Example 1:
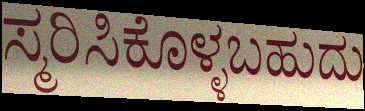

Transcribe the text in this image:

ಸ್ಮರಿಸಿಕೊಳ್ಳಬಹುದು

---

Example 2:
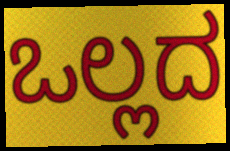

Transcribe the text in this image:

ಒಲ್ಲದ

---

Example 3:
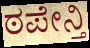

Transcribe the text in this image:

ಠಪೇನ್ತಿ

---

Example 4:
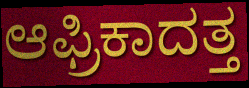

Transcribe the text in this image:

ಆಫ್ರಿಕಾದತ್ತ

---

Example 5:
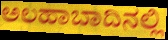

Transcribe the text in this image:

ಅಲಹಾಬಾದಿನಲ್ಲಿ